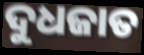
ଦୁଧଜାତ